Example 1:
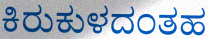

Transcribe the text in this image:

ಕಿರುಕುಳದಂತಹ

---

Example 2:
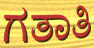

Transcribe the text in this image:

ಗತಾತಿ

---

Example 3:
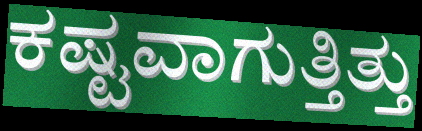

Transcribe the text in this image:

ಕಷ್ಟವಾಗುತ್ತಿತ್ತು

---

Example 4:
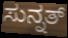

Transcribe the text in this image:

ಸುನ್ನತ್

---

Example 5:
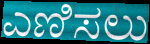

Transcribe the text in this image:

ಎಣಿಸಲು